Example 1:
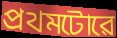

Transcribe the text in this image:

প্ৰথমটোৱে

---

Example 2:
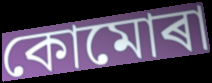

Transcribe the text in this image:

কোমোৰা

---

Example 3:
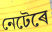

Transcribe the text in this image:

নেটেৰে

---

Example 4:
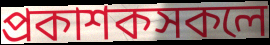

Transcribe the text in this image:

প্ৰকাশকসকলে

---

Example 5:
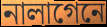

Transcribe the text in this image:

নালাগেনে